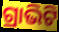
ଗ୍ରାଭିଟି